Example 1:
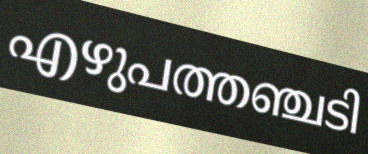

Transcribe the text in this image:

എഴുപത്തഞ്ചടി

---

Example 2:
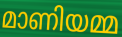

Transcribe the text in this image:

മാണിയമ്മ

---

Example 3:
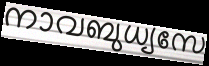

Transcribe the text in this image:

നാവബുധ്യസേ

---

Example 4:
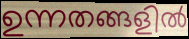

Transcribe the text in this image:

ഉന്നതങ്ങളിൽ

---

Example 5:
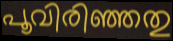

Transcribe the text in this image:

പൂവിരിഞ്ഞതു